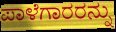
ಪಾಳೆಗಾರರನ್ನು